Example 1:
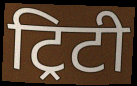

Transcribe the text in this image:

ट्रिटी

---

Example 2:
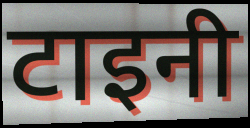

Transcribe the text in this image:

टाइनी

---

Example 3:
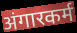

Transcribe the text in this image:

अंगारकर्म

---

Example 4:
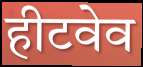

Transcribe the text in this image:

हीटवेव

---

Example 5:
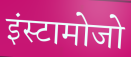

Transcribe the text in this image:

इंस्टामोजो